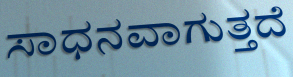
ಸಾಧನವಾಗುತ್ತದೆ